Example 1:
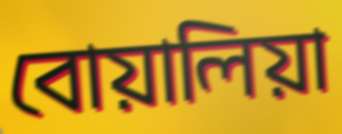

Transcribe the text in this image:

বোয়ালিয়া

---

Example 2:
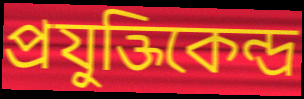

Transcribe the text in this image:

প্রযুক্তিকেন্দ্র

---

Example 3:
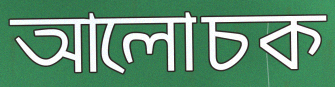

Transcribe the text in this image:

আলোচক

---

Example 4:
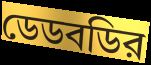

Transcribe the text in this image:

ডেডবডির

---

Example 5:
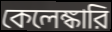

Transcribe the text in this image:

কেলেঙ্কারি